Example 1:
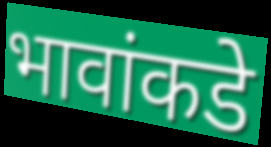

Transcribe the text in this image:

भावांकडे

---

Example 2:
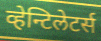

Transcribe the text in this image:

व्हेन्टिलेटर्स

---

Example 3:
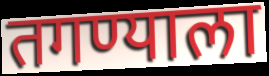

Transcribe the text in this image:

तगण्याला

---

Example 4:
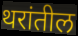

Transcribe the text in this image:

थरांतील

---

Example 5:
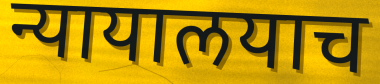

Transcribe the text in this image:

न्यायालयाच